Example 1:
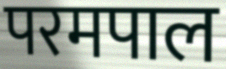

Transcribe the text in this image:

परमपाल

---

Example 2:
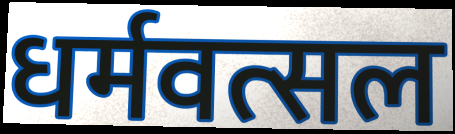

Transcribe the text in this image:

धर्मवत्सल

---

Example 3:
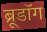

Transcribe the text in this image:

ब्रूडॉग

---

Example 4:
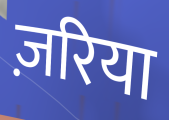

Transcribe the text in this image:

ज़रिया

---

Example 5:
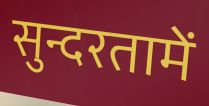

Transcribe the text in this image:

सुन्दरतामें